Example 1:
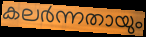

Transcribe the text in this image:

കലർന്നതായും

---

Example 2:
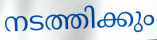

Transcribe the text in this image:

നടത്തിക്കും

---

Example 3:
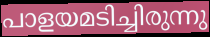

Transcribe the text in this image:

പാളയമടിച്ചിരുന്നു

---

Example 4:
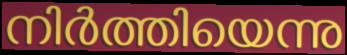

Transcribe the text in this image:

നിർത്തിയെന്നു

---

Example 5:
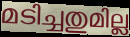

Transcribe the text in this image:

മടിച്ചതുമില്ല